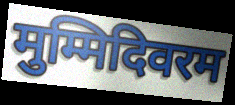
मुम्मिदिवरम